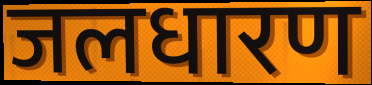
जलधारण